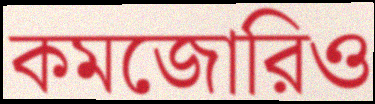
কমজোরিও